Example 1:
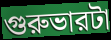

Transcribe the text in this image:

গুরুভারটা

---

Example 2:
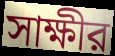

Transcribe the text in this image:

সাক্ষীর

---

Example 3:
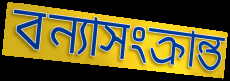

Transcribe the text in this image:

বন্যাসংক্রান্ত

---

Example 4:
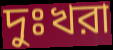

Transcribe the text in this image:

দুঃখরা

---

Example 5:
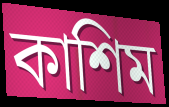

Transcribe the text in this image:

কাশিম